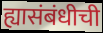
ह्यासंबंधीची